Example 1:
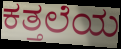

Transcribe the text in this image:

ಕತ್ತಲೆಯ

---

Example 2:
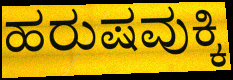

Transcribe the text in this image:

ಹರುಷವುಕ್ಕಿ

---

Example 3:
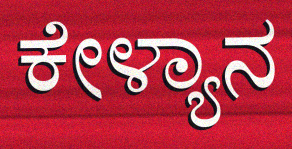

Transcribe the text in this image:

ಕೇಳ್ಯಾನ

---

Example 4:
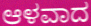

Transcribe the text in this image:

ಆಳವಾದ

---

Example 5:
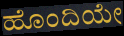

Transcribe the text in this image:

ಹೊಂದಿಯೇ